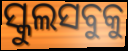
ସ୍କୁଲସବୁକୁ